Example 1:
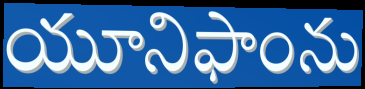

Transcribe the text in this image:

యూనిఫాంను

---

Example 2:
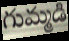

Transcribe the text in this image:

గుమ్మడి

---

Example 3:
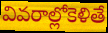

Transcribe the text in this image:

వివరాల్లోకెళితే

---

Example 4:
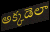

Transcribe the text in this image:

అక్కడెలా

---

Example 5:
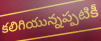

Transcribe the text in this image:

కలిగియున్నప్పటికీ